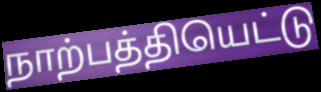
நாற்பத்தியெட்டு